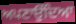
ਅਪਣਾਉਂਦਿਆ